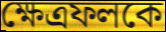
ক্ষেত্রফলকে